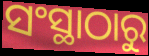
ସଂସ୍ଥାଠାରୁ